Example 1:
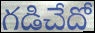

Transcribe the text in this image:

గడిచేదో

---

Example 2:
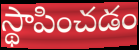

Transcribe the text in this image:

స్థాపించడం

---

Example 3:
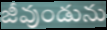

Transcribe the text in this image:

జీవుండును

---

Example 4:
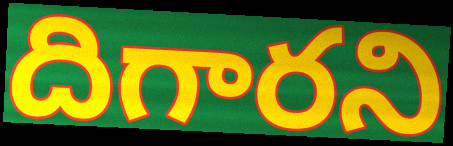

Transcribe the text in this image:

దిగారని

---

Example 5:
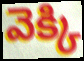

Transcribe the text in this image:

వెక్కి